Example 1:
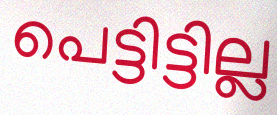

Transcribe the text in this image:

പെട്ടിട്ടില്ല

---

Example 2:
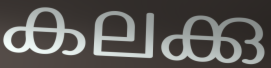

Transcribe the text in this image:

കലക്കു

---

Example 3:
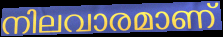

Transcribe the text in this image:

നിലവാരമാണ്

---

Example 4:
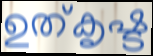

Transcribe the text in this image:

ഉത്കൃഷ്ട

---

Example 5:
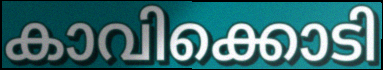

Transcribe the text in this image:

കാവിക്കൊടി